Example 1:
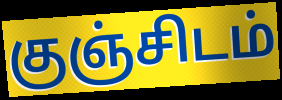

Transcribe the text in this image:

குஞ்சிடம்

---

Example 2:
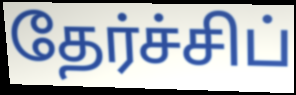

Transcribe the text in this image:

தேர்ச்சிப்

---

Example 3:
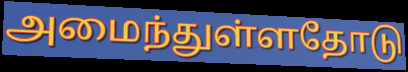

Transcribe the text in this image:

அமைந்துள்ளதோடு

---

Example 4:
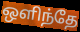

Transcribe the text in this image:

ஒளிந்தே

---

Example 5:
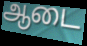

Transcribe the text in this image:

ஆடை